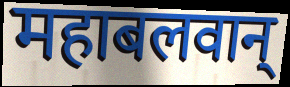
महाबलवान्